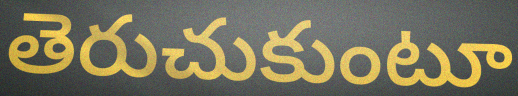
తెరుచుకుంటూ